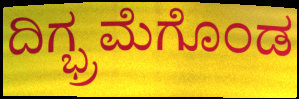
ದಿಗ್ಭ್ರಮೆಗೊಂಡ